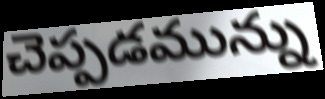
చెప్పడమున్ను